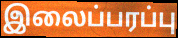
இலைப்பரப்பு